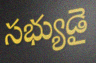
సభ్యుడై